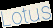
Lotus